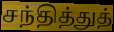
சந்தித்துத்